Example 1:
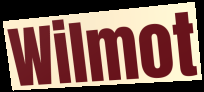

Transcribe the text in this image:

Wilmot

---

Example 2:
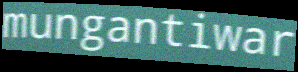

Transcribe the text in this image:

mungantiwar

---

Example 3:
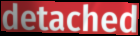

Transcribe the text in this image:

detached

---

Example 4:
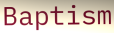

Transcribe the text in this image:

Baptism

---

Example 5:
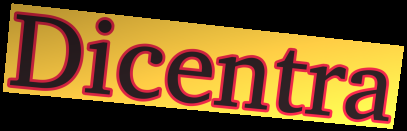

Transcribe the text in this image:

Dicentra